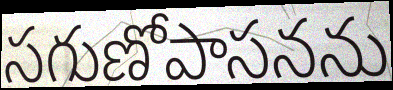
సగుణోపాసనను